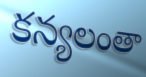
కన్యలంతా